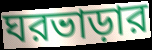
ঘরভাড়ার